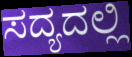
ಸದ್ಯದಲ್ಲಿ